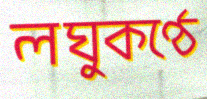
লঘুকণ্ঠে